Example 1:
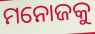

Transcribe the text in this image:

ମନୋଜକୁ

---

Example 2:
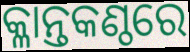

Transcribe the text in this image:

କ୍ଳାନ୍ତକଣ୍ଠରେ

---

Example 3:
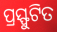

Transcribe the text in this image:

ପ୍ରସ୍ଫୁଟିତ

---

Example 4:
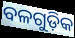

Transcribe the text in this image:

ବଳଗୁଡ଼ିକ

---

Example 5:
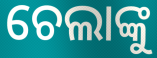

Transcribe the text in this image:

ଚେଲାଙ୍କୁ